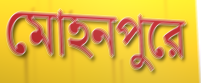
মোহনপুরে